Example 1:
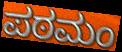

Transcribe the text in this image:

ಪಠಮಂ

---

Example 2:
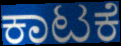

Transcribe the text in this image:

ಕಾಟಕೆ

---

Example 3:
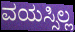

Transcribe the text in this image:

ವಯಸ್ಸಿಲ್ಲ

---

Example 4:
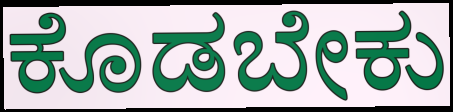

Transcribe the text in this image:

ಕೊಡಬೇಕು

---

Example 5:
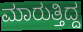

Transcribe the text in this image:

ಮಾರುತ್ತಿದ್ದ